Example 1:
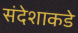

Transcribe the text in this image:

संदेशाकडे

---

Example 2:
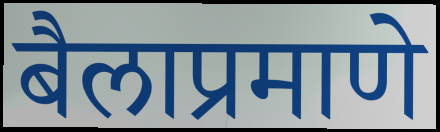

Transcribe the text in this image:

बैलाप्रमाणे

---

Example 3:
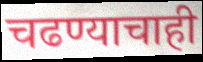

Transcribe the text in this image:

चढण्याचाही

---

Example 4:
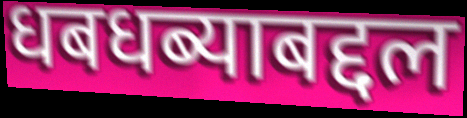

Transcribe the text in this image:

धबधब्याबद्दल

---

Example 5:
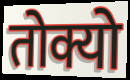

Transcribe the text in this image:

तोक्यो